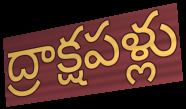
ద్రాక్షపళ్లు